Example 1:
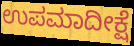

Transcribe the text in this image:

ಉಪಮಾದೀಕ್ಷೆ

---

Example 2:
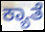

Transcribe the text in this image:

ಕ್ಯಾತೆ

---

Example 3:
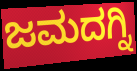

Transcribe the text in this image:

ಜಮದಗ್ನಿ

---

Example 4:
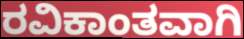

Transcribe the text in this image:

ರವಿಕಾಂತವಾಗಿ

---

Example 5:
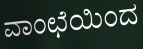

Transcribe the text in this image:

ವಾಂಛೆಯಿಂದ